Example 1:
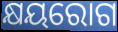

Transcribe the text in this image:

କ୍ଷୟରୋଗ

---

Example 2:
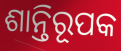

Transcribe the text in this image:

ଶାନ୍ତିରୂପକ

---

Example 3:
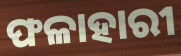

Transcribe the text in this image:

ଫଳାହାରୀ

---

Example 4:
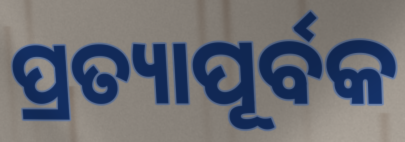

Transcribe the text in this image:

ପ୍ରତ୍ୟାପୂର୍ବକ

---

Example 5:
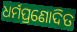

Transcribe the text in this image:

ଧର୍ମପ୍ରଣୋଦିତ